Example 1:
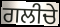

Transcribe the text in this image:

ਗਲੀਚੇ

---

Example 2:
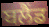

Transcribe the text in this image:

ਬਲੈਂਡ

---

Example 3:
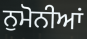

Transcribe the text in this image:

ਨੁਮੋਨੀਆਂ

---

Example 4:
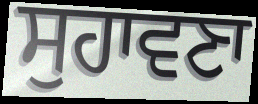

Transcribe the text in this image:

ਸੁਹਾਵਣਾ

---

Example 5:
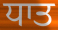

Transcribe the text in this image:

ਧਾਤ